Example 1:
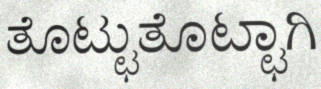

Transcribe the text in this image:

ತೊಟ್ಟುತೊಟ್ಟಾಗಿ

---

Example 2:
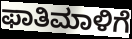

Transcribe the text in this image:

ಫಾತಿಮಾಳಿಗೆ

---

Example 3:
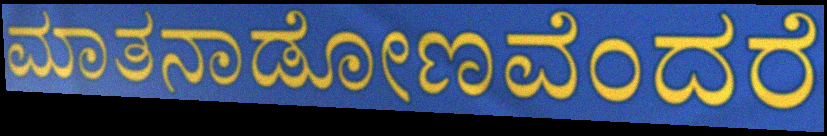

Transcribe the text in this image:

ಮಾತನಾಡೋಣವೆಂದರೆ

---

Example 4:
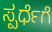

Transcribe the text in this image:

ಸ್ಪರ್ಧೆಗೆ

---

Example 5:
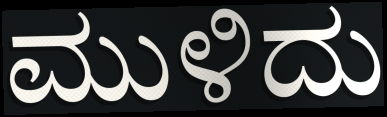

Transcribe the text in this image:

ಮುಳಿದು